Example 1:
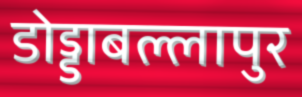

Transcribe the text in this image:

डोड्डाबल्लापुर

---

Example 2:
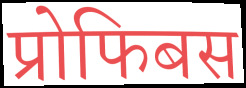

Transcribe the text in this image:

प्रोफिबस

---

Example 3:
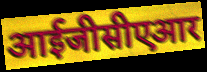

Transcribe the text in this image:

आईजीसीएआर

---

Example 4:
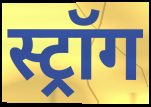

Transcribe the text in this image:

स्ट्रॉग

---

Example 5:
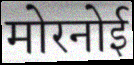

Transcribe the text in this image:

मोरनोई